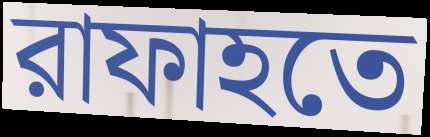
রাফাহতে